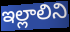
ఇల్లాలిని